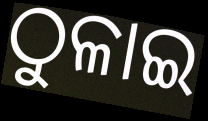
ଠୁଳାଇ